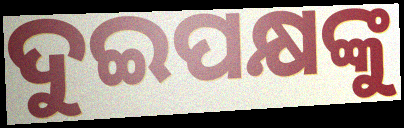
ଦୁଇପକ୍ଷଙ୍କୁ